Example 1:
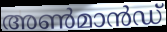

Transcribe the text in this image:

അൺമാൻഡ്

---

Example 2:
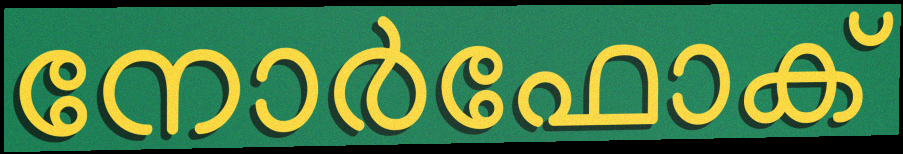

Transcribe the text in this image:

നോർഫോക്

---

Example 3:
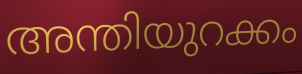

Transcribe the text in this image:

അന്തിയുറക്കം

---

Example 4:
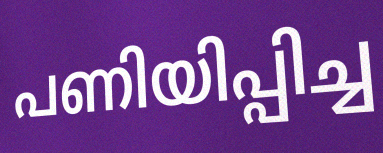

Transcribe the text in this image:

പണിയിപ്പിച്ച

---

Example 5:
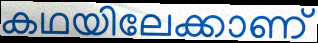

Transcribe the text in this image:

കഥയിലേക്കാണ്